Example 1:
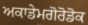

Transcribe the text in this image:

ਅਕਾਡੇਮਗੋਰੋਡੋਕ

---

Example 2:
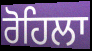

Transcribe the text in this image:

ਰੋਹਿਲਾ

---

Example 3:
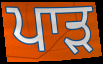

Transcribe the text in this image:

ਪਾੜ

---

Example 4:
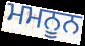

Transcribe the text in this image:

ਮਮਨੂਨ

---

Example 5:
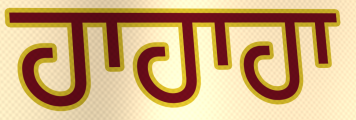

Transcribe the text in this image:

ਹਾਹਾਹਾ